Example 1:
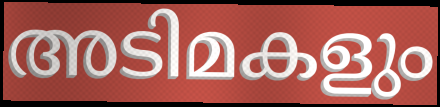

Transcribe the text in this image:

അടിമകളും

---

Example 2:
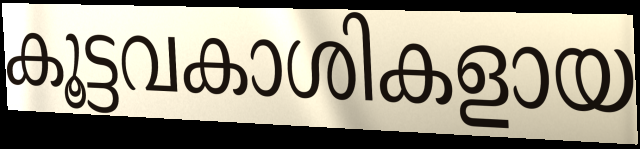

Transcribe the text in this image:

കൂട്ടവകാശികളായ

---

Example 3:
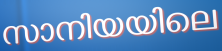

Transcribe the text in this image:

സാനിയയിലെ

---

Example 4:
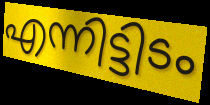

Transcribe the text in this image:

എന്നിട്ടിടം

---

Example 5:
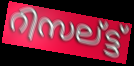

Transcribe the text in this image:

റിസല്ട്ട്